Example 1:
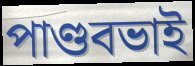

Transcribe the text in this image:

পাণ্ডবভাই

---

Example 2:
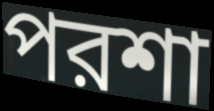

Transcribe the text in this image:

পরশা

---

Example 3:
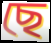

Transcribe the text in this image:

ছে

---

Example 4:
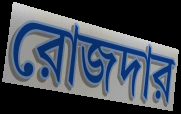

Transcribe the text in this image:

রোজদার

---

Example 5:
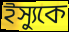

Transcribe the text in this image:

ইস্যুকে